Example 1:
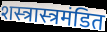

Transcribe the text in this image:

शस्त्रास्त्रमंडित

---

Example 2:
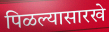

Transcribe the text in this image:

पिळल्यासारखे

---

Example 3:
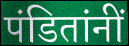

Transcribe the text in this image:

पंडितांनीं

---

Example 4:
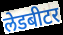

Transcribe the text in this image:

लेडबीटर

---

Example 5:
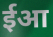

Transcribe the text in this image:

ईआ